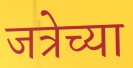
जत्रेच्या